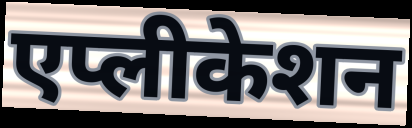
एप्लीकेशन